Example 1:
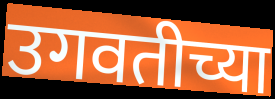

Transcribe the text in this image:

उगवतीच्या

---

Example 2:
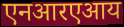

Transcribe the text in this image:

एनआरएआय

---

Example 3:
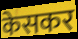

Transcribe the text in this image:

केसकर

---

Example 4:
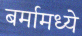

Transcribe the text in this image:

बर्मामध्ये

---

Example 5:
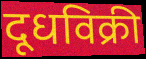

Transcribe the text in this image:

दूधविक्री